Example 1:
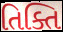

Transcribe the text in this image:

તિક્તિ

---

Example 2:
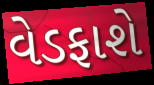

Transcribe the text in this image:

વેડફાશે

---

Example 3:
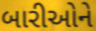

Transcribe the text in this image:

બારીઓને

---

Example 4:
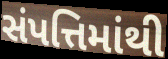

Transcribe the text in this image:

સંપત્તિમાંથી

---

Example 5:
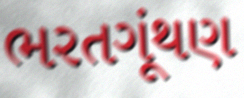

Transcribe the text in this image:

ભરતગૂંથણ